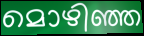
മൊഴിഞ്ഞ